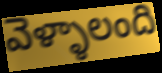
వెళ్ళాలంది